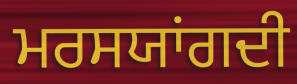
ਮਰਸਯਾਂਗਦੀ